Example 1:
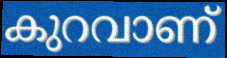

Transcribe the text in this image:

കുറവാണ്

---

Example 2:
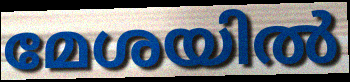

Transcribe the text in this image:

മേശയിൽ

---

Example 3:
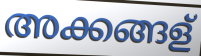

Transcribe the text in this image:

അക്കങ്ങള്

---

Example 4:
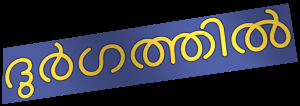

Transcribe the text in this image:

ദുർഗത്തിൽ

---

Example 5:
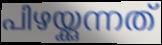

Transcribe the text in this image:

പിഴയ്ക്കുന്നത്